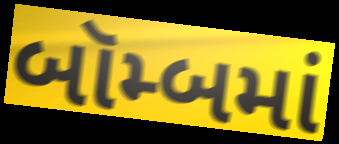
બૉમ્બમાં